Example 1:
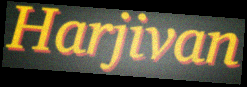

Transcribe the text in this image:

Harjivan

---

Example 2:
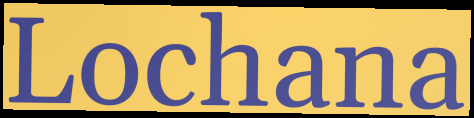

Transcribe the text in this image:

Lochana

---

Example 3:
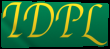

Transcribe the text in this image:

IDPL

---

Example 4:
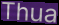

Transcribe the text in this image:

Thua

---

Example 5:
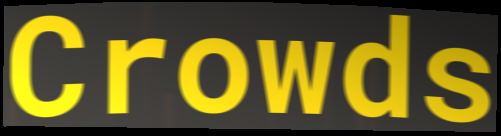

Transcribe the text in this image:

Crowds